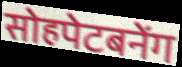
सोहपेटबनेंग